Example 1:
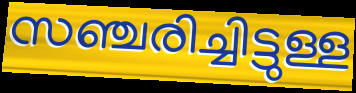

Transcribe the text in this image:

സഞ്ചരിച്ചിട്ടുള്ള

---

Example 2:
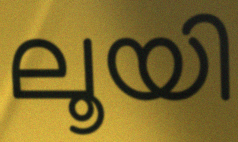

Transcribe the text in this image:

ലൂയി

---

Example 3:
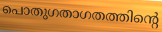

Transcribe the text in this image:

പൊതുഗതാഗതത്തിന്റെ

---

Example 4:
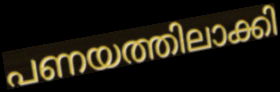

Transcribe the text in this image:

പണയത്തിലാക്കി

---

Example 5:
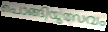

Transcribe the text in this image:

പൊങ്ങിയുത്സവം